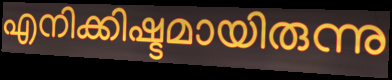
എനിക്കിഷ്ടമായിരുന്നു